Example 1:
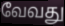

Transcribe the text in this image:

வேவது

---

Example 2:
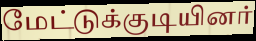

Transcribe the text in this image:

மேட்டுக்குடியினர்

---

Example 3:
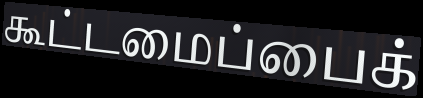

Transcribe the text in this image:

கூட்டமைப்பைக்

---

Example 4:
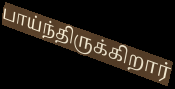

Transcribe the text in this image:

பாய்ந்திருக்கிறார்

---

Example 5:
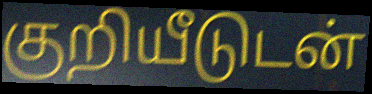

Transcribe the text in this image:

குறியீடுடன்